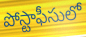
పోస్టాఫీసులో